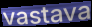
vastava